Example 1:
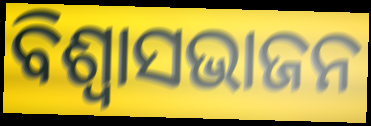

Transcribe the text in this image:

ବିଶ୍ୱାସଭାଜନ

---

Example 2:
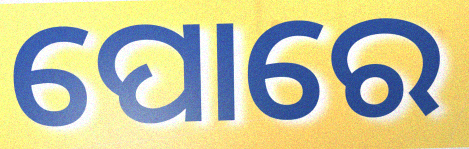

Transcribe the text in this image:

ପୋରେ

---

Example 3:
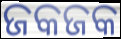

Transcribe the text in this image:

ଜକଜକ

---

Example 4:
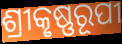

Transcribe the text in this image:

ଶ୍ରୀକୃଷ୍ଣରୂପୀ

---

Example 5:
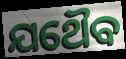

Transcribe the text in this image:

ଯଥୈବ